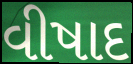
વીષાદ